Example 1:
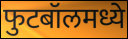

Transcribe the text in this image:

फुटबॉलमध्ये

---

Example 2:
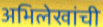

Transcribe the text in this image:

अभिलेखांची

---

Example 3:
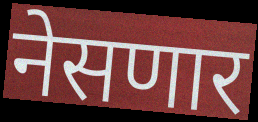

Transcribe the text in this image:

नेसणार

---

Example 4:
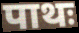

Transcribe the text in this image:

पाथः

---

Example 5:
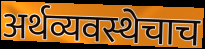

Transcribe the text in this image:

अर्थव्यवस्थेचाच